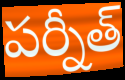
పర్నీత్